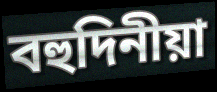
বহুদিনীয়া